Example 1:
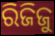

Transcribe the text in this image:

ରିଜିଜୁ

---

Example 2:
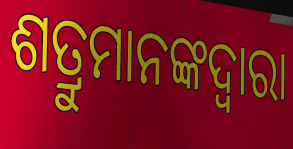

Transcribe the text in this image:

ଶତ୍ରୁମାନଙ୍କଦ୍ଵାରା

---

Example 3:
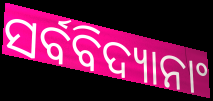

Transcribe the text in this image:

ସର୍ବବିଦ୍ୟାନାଂ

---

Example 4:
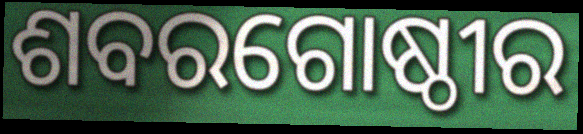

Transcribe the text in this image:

ଶବରଗୋଷ୍ଠୀର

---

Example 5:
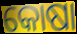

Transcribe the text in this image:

କୋଷା